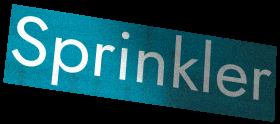
Sprinkler